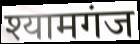
श्यामगंज